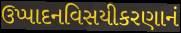
ઉપ્પાદનવિસયીકરણાનં